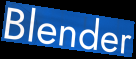
Blender